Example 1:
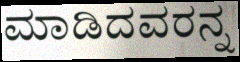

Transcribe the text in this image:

ಮಾಡಿದವರನ್ನ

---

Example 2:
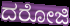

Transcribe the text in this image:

ದರೋಜಿ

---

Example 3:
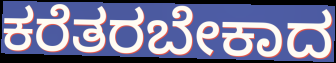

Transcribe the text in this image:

ಕರೆತರಬೇಕಾದ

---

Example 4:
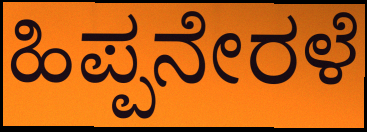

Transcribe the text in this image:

ಹಿಪ್ಪನೇರಳೆ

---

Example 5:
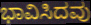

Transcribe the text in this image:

ಭಾವಿಸಿದವು